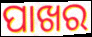
ପାଖର